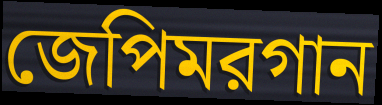
জেপিমরগান